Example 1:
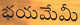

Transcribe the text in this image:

భయమేమీ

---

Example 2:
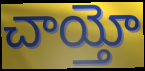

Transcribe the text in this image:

చాయ్తో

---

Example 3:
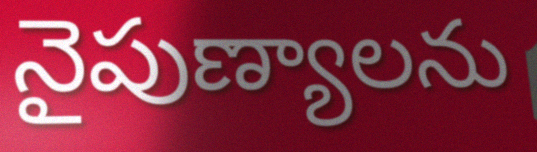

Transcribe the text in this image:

నైపుణ్యాలను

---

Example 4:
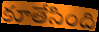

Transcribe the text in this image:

కూతేసింది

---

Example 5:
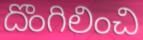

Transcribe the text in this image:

దొంగిలించి